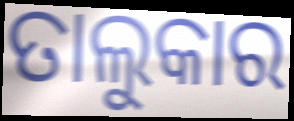
ତାଲୁକାର